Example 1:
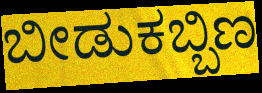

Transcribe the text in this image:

ಬೀಡುಕಬ್ಬಿಣ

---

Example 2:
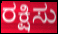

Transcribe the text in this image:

ರಕ್ಷಿಸು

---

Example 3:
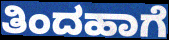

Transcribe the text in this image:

ತಿಂದಹಾಗೆ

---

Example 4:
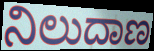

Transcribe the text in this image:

ನಿಲುದಾಣ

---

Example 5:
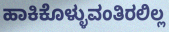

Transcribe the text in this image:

ಹಾಕಿಕೊಳ್ಳುವಂತಿರಲಿಲ್ಲ